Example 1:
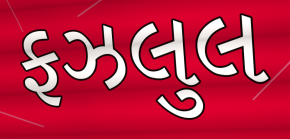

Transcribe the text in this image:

ફઝલુલ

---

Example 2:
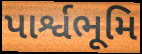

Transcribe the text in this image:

પાર્શ્વભૂમિ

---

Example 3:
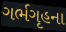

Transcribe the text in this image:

ગર્ભગૃહના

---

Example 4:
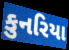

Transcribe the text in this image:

કુનરિયા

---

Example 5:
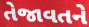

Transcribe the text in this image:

તેજાવતને